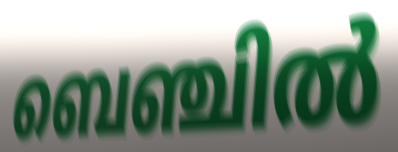
ബെഞ്ചിൽ